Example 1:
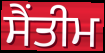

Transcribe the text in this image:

ਸੈਂਤੀਮ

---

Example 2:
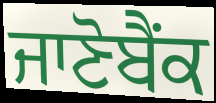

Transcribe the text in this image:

ਜਾਣੋਬੈਂਕ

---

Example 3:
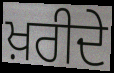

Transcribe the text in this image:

ਖ਼ਰੀਦੇ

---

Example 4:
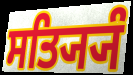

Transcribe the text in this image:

ਸਤ੍ਯ੍ਯਿੰ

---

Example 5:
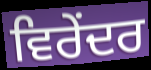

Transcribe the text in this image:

ਵਿਰੇਂਦਰ